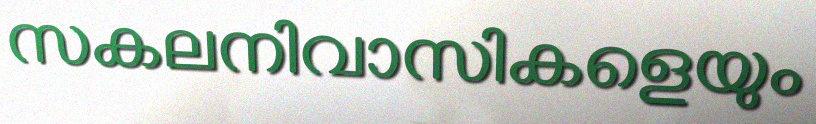
സകലനിവാസികളെയും